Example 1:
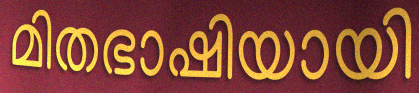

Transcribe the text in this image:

മിതഭാഷിയായി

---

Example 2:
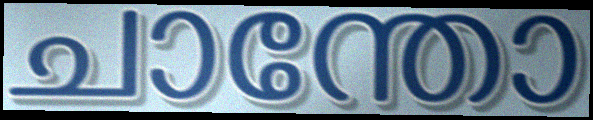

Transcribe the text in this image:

ചാന്തോ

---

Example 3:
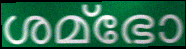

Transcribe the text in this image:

ശമ്ഭോ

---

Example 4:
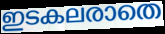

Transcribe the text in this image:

ഇടകലരാതെ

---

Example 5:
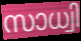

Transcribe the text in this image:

സാധ്വി